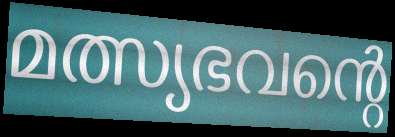
മത്സ്യഭവന്റെ